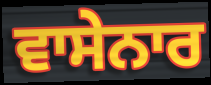
ਵਾਸੇਨਾਰ